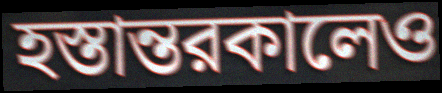
হস্তান্তরকালেও